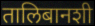
तालिबानशी